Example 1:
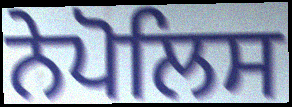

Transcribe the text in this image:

ਨੇਪੋਲਿਸ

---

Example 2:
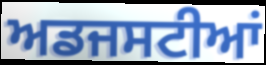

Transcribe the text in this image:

ਅਡਜਸਟੀਆਂ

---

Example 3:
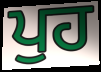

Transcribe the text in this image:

ਪੁਹ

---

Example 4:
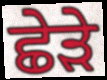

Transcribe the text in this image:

ਛੇੜੇ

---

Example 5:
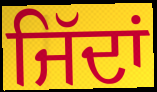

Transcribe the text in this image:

ਜਿੱਦਾਂ